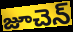
జూచెన్